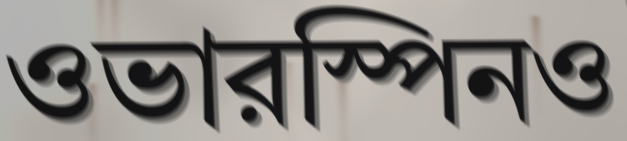
ওভারস্পিনও